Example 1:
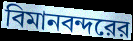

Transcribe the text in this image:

বিমানবন্দরের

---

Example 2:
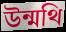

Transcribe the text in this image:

উন্মথি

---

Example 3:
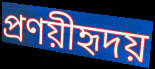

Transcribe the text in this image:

প্রণয়ীহৃদয়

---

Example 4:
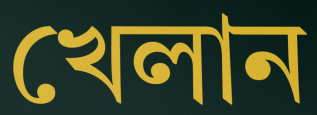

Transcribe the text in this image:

খেলান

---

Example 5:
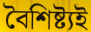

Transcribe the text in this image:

বৈশিষ্ট্যই